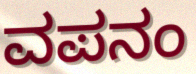
ವಪನಂ